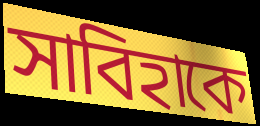
সাবিহাকে